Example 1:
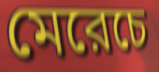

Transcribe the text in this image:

মেরেচে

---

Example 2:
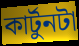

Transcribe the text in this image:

কার্টুনটা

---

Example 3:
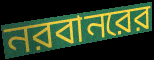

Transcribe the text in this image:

নরবানরের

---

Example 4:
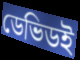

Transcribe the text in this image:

ডেভিডই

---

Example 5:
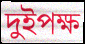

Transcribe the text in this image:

দুইপক্ষ